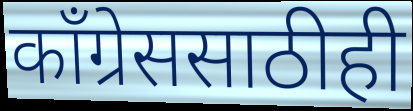
काँग्रेससाठीही